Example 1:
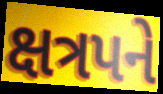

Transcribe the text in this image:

ક્ષત્રપને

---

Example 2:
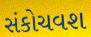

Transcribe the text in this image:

સંકોચવશ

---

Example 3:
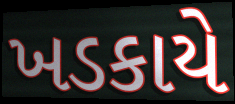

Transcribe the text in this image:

ખડકાયે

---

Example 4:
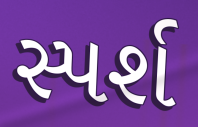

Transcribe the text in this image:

સ્પર્શ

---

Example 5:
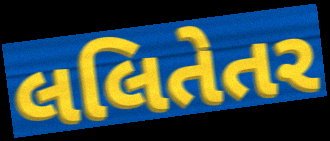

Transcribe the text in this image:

લલિતેતર